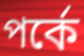
পর্কে